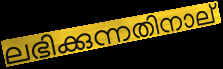
ലഭിക്കുന്നതിനാല്